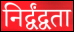
निर्द्वंद्वता